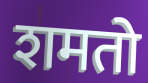
शमतो